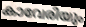
കാവേരിയും